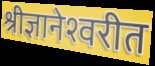
श्रीज्ञानेश्वरीत